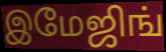
இமேஜிங்